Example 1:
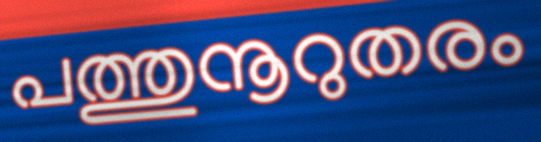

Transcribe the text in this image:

പത്തുനൂറുതരം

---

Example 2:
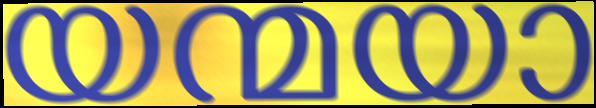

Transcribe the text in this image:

യന്മയാ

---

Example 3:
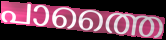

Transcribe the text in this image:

പാത്തൈ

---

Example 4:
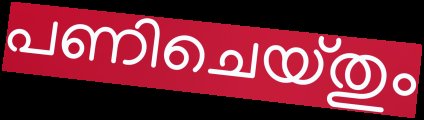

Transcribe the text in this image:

പണിചെയ്തും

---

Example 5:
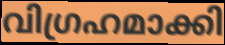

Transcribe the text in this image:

വിഗ്രഹമാക്കി